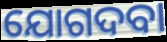
ଯୋଗଦବା